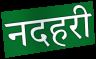
नदहरी